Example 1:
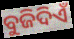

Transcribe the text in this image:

ବୁଜିଦିଏଁ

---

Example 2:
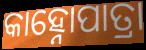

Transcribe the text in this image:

କାହ୍ନୋପାତ୍ରା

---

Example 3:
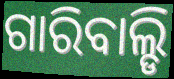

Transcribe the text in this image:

ଗାରିବାଲ୍ଡି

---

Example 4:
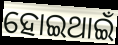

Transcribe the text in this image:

ହୋଇଥାଇଁ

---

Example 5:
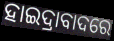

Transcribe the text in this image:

ହାଇଦ୍ରାବାଦରେ